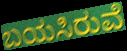
ಬಯಸಿರುವೆ